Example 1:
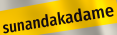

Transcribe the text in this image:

sunandakadame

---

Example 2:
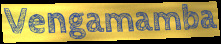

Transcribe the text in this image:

Vengamamba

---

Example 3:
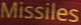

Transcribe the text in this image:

Missiles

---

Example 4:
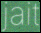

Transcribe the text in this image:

jait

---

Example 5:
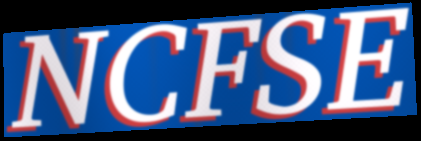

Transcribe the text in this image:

NCFSE